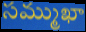
సమ్ముఖా